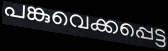
പങ്കുവെക്കപ്പെട്ട